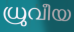
ധ്രുവീയ